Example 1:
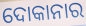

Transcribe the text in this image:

ଦୋକାନାର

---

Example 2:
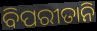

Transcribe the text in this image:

ବିପରୀତାନି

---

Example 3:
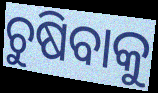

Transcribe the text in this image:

ଚୁଷିବାକୁ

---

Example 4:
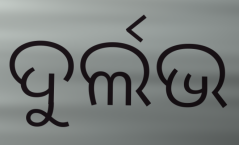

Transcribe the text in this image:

ଦୁର୍ଲଭ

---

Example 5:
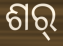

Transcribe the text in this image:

ଶର୍